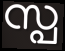
സ്പ